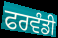
ਫਰਵੰਡੀ